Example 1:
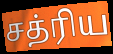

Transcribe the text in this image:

சத்ரிய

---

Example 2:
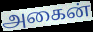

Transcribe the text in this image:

அகைன்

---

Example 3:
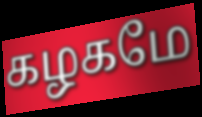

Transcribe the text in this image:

கழகமே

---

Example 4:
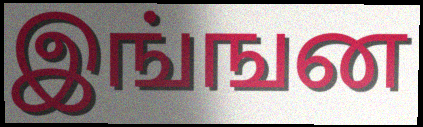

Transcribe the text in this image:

இங்ஙன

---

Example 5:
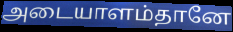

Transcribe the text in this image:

அடையாளம்தானே